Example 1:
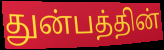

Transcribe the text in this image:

துன்பத்தின்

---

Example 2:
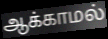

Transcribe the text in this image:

ஆக்காமல்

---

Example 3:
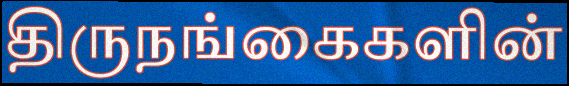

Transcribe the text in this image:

திருநங்கைகளின்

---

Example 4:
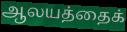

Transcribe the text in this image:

ஆலயத்தைக்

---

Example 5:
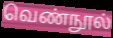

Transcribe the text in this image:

வெண்நூல்